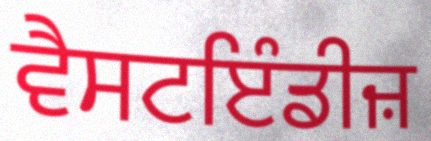
ਵੈਸਟਇੰਡੀਜ਼